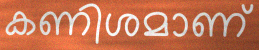
കണിശമാണ്